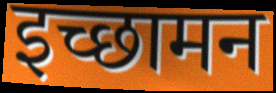
इच्छामन